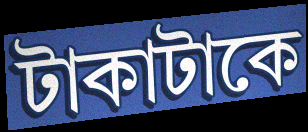
টাকাটাকে